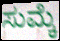
ಸುಮ್ಕೆ